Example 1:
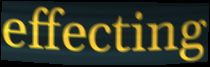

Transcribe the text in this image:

effecting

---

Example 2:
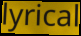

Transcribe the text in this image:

lyrical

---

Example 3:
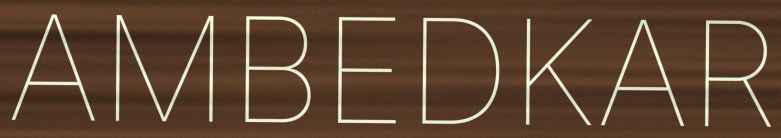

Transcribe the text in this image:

AMBEDKAR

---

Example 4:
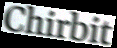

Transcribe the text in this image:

Chirbit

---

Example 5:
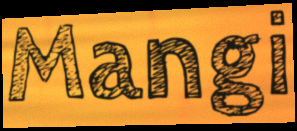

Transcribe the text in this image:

Mangi